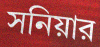
সনিয়ার